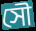
সৌ